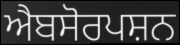
ਐਬਸੋਰਪਸ਼ਨ